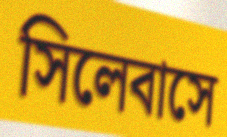
সিলেবাসে